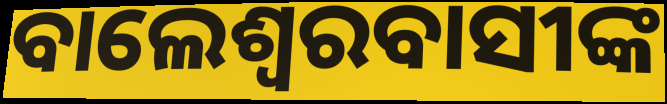
ବାଲେଶ୍ବରବାସୀଙ୍କ